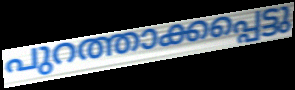
പുറത്താക്കപ്പെട്ടു